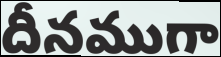
దీనముగా